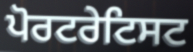
ਪੋਰਟਰੇਟਿਸਟ